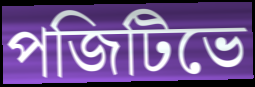
পজিটিভে